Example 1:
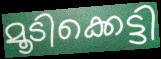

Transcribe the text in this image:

മൂടിക്കെട്ടി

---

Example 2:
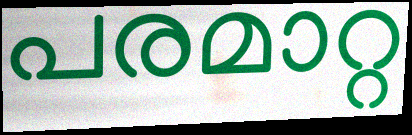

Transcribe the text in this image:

പരമാറ്റ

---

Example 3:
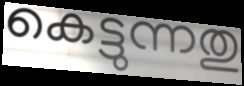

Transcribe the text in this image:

കെട്ടുന്നതു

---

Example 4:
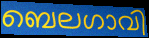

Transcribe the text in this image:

ബെലഗാവി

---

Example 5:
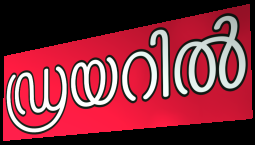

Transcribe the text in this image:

ഡ്രയറിൽ